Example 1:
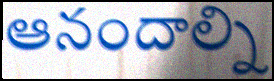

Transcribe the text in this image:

ఆనందాల్ని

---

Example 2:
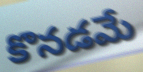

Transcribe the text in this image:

కొనడమే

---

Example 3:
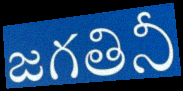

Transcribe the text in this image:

జగతినీ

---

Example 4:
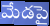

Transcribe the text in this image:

మేడపై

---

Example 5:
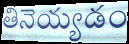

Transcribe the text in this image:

తినెయ్యడం